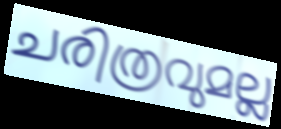
ചരിത്രവുമല്ല